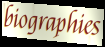
biographies